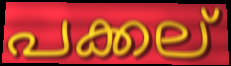
പക്കല്